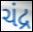
ચંદ્ર